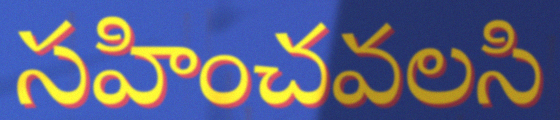
సహించవలసి